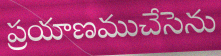
ప్రయాణముచేసెను